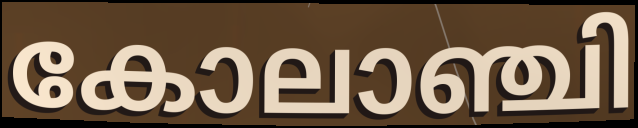
കോലാഞ്ചി